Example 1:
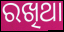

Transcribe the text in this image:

ରଖିଥା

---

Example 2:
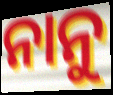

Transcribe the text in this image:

ନାନୁ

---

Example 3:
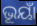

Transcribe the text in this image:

ଭୂୟାଁ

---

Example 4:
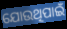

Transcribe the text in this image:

ଯୋଉଥିପାଇଁ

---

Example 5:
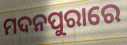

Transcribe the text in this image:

ମଦନପୁରାରେ